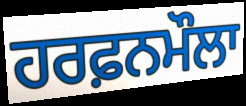
ਹਰਫ਼ਨਮੌਲਾ